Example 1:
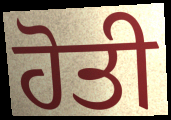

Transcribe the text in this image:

ਹੋਤੀ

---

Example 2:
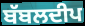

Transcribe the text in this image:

ਬੱਬਲਦੀਪ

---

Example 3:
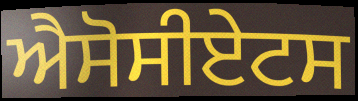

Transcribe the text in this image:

ਐਸੋਸੀਏਟਸ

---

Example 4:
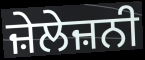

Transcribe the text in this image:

ਜ਼ੇਲੇਜ਼ਨੀ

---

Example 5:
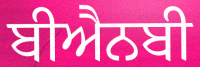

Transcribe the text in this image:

ਬੀਐਨਬੀ